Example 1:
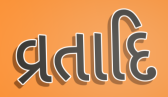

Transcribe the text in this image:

વ્રતાદિ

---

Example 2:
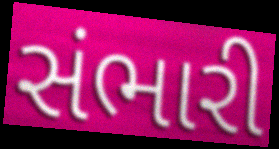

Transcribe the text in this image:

સંભારી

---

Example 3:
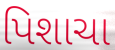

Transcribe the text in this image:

પિશાચા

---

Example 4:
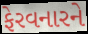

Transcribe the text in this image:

ફેરવનારને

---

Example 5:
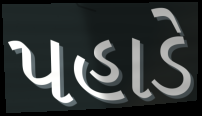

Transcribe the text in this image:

પહાડે